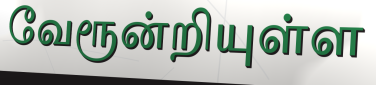
வேரூன்றியுள்ள